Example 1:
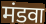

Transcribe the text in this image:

मंडवा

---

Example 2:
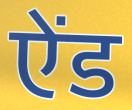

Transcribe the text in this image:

ऐंड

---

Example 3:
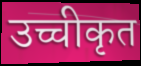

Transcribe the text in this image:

उच्चीकृत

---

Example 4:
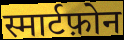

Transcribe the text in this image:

स्मार्टफ़ोन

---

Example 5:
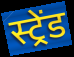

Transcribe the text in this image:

स्ट्रेंड